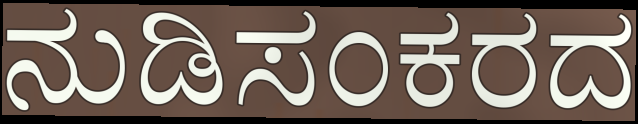
ನುಡಿಸಂಕರದ